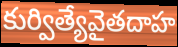
కుర్విత్యేవైతదాహ